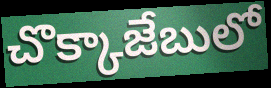
చొక్కాజేబులో